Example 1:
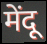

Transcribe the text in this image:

मेंदू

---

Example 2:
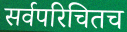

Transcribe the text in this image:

सर्वपरिचितच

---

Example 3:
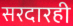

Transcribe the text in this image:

सरदारही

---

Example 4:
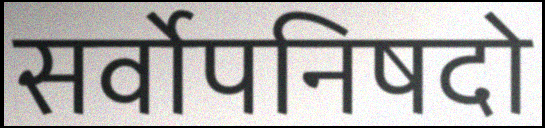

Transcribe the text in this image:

सर्वोपनिषदो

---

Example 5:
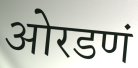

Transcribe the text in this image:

ओरडणं